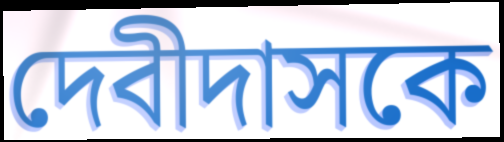
দেবীদাসকে